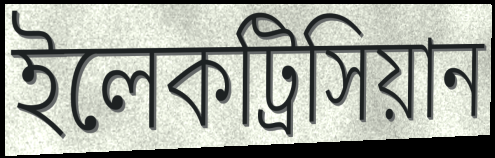
ইলেকট্রিসিয়ান